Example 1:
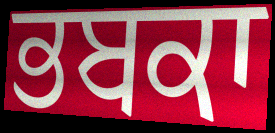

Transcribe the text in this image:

ਭਬਕਾ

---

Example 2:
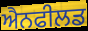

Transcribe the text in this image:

ਐਨਫੀਲਡ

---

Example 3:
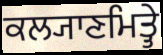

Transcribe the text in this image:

ਕਲ੍ਯਾਣਮਿਤ੍ਤੇ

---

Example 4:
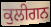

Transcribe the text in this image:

ਕੁਲੀਗਨ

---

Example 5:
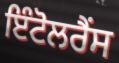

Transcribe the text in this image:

ਇੰਟੋਲਰੈਂਸ